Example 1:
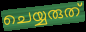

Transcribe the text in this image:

ചെയ്യരുത്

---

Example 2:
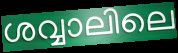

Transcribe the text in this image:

ശവ്വാലിലെ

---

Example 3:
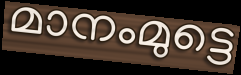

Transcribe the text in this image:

മാനംമുട്ടെ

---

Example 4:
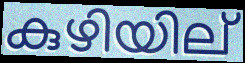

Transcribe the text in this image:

കുഴിയില്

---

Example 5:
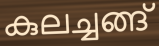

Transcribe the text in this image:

കുലച്ചങ്ങ്